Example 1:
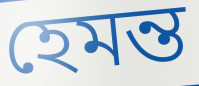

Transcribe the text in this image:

হেমন্ত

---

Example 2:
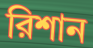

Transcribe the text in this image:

রিশান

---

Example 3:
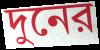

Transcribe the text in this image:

দুনের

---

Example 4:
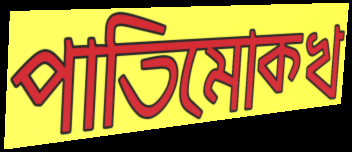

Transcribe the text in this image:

পাতিমোক্খ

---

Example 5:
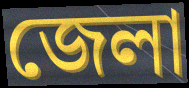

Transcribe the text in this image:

জেলা